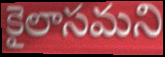
కైలాసమని